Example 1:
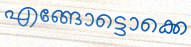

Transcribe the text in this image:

എങ്ങോട്ടൊക്കെ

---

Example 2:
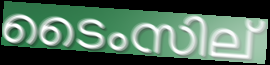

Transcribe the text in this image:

ടൈംസില്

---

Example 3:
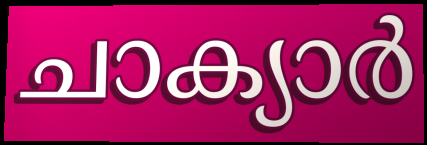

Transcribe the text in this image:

ചാക്യാർ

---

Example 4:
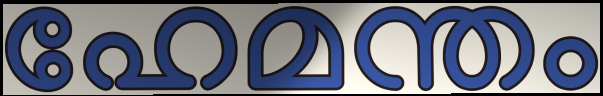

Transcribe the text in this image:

ഹേമന്തം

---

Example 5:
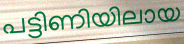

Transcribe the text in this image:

പട്ടിണിയിലായ